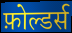
फ़ोल्डर्स